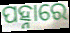
ପହ୍ନାରେ